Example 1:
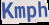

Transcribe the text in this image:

Kmph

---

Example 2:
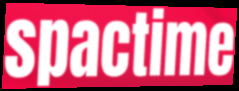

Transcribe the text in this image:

spactime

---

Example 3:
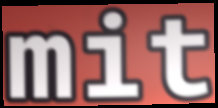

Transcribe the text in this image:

mit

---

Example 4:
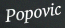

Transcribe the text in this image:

Popovic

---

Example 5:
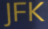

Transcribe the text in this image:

JFK